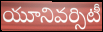
యూనివర్సిటీ